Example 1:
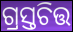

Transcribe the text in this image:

ଗ୍ରସ୍ତଚିତ୍ତ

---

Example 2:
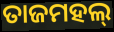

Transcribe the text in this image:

ତାଜମହଲ୍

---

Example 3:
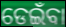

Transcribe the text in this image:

ଡେଇଁବା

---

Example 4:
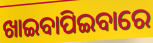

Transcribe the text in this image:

ଖାଇବାପିଇବାରେ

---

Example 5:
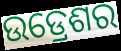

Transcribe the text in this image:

ଉଡ୍ରେଶର